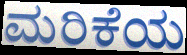
ಮರಿಕೆಯ